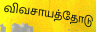
விவசாயத்தோடு